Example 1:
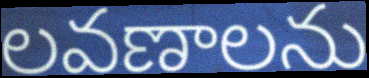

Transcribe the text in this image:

లవణాలను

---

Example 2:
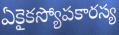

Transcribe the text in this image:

ఏకైకస్యోపకారస్య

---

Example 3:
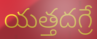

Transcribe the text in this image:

యత్తదగ్రే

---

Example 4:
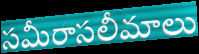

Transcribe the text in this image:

సమీరాసలీమాలు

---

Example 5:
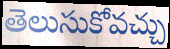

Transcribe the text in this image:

తెలుసుకోవచ్చు